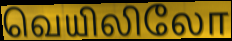
வெயிலிலோ